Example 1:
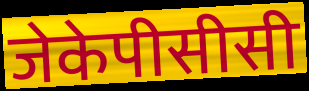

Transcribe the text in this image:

जेकेपीसीसी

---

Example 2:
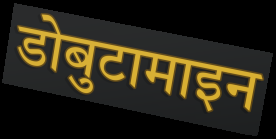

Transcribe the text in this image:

डोबुटामाइन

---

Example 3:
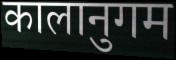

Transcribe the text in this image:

कालानुगम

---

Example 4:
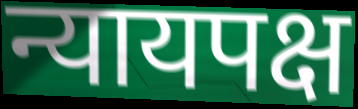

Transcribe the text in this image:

न्यायपक्ष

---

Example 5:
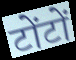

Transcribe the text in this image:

टोंटों